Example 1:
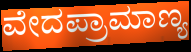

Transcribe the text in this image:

ವೇದಪ್ರಾಮಾಣ್ಯ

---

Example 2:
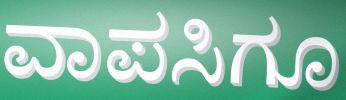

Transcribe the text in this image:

ವಾಪಸಿಗೂ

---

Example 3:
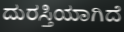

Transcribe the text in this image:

ದುರಸ್ತಿಯಾಗಿದೆ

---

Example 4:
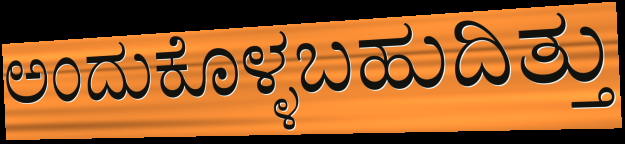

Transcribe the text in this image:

ಅಂದುಕೊಳ್ಳಬಹುದಿತ್ತು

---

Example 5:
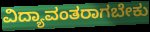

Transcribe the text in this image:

ವಿದ್ಯಾವಂತರಾಗಬೇಕು